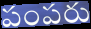
పంపరు